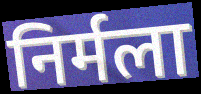
निर्मला